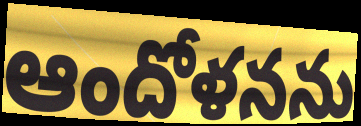
ఆందోళనను